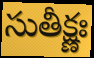
సుతీక్ష్ణః